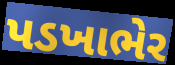
પડખાભેર